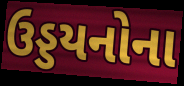
ઉડ્ડયનોના